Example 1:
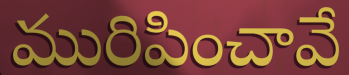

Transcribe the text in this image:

మురిపించావే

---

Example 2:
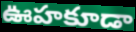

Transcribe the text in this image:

ఊహకూడా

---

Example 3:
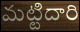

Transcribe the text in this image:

మట్టిదారి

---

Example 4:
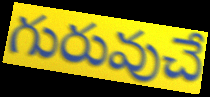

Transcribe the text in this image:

గురువుచే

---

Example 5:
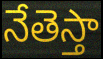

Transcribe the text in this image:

నేతెస్తా